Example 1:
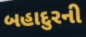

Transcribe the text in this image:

બહાદુરની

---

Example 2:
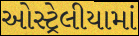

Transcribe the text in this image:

ઓસ્ટ્રેલીયામાં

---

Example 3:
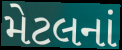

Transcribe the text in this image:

મેટલનાં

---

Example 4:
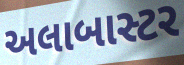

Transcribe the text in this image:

અલાબાસ્ટર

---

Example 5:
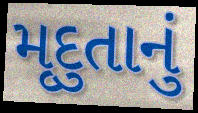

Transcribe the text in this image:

મૃદુતાનું